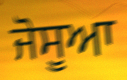
ਜੋਸੂਆ